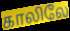
காலிலே